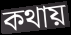
কথায়